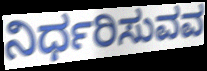
ನಿರ್ಧರಿಸುವವ